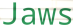
Jaws